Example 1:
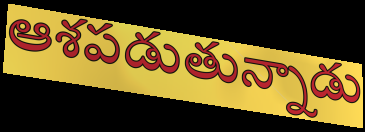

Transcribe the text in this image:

ఆశపడుతున్నాడు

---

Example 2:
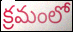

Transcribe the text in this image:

క్రమంలో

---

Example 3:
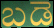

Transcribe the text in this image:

బడె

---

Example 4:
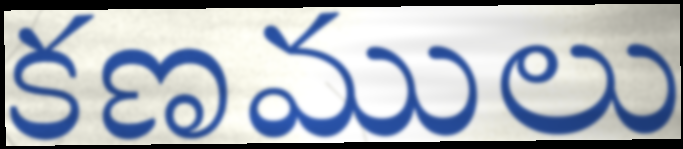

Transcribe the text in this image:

కణములు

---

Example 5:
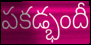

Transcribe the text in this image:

పకడ్భందీ